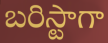
బరిస్టాగా